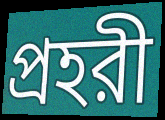
প্রহরী